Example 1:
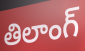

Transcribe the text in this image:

తిలాంగ్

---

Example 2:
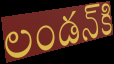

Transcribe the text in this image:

లండన్‌కి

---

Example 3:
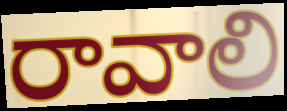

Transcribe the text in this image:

రావాలి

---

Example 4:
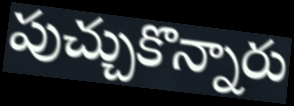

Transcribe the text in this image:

పుచ్చుకొన్నారు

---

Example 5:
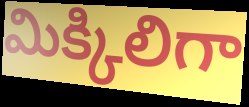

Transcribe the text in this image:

మిక్కిలిగా